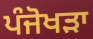
ਪੰਜੋਖੜਾ